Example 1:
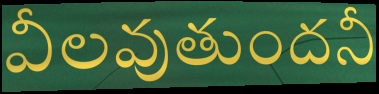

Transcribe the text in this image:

వీలవుతుందనీ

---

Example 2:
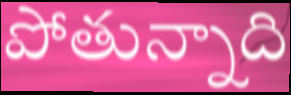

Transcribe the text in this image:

పోతున్నాది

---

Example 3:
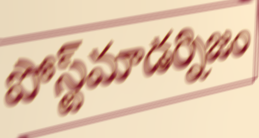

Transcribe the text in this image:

పోస్ట్‌మాడర్నిజం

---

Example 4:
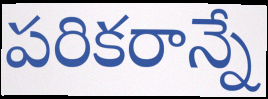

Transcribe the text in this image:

పరికరాన్నే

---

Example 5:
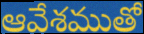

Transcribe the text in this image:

ఆవేశముతో